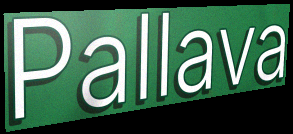
Pallava